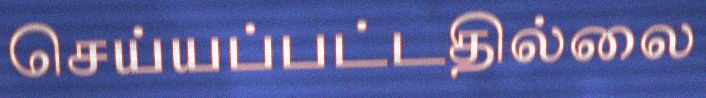
செய்யப்பட்டதில்லை